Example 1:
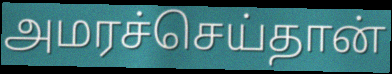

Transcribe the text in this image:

அமரச்செய்தான்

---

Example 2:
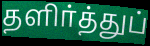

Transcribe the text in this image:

தளிர்த்துப்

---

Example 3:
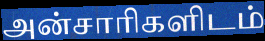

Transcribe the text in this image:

அன்சாரிகளிடம்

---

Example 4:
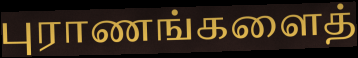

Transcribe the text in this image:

புராணங்களைத்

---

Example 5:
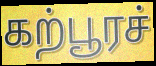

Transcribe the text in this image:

கற்பூரச்